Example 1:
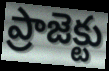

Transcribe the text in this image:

ప్రాజెక్టు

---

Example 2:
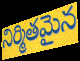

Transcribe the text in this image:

నిర్మితమైన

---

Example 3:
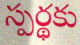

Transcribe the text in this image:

స్పర్థకు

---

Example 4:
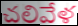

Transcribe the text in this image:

చలివేళ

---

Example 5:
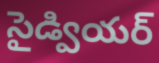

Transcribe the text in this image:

సైడ్వియర్